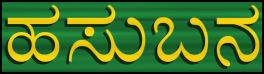
ಹಸುಬನ